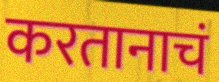
करतानाचं